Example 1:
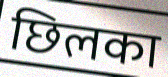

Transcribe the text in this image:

छिलका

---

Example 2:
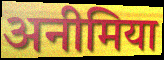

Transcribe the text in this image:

अनीमिया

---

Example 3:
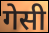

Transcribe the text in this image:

गेसी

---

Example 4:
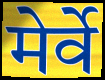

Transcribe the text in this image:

मेर्वे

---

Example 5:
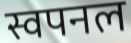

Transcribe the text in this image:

स्वपनल